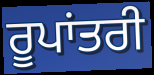
ਰੂਪਾਂਤਰੀ